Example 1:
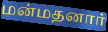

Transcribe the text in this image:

மன்மதனார்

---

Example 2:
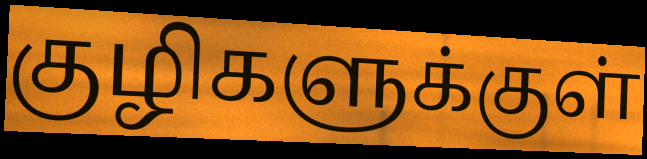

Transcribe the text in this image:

குழிகளுக்குள்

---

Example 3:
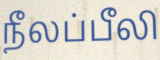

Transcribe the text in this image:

நீலப்பீலி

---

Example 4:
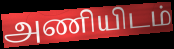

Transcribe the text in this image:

அணியிடம்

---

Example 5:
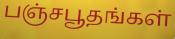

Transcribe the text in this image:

பஞ்சபூதங்கள்